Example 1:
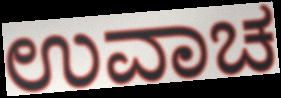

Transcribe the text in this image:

ಉವಾಚ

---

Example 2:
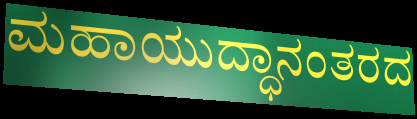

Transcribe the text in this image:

ಮಹಾಯುದ್ಧಾನಂತರದ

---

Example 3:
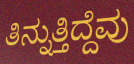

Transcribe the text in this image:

ತಿನ್ನುತ್ತಿದ್ದೆವು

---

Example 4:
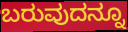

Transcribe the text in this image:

ಬರುವುದನ್ನೂ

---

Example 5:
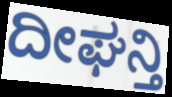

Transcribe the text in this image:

ದೀಘನ್ತಿ